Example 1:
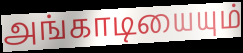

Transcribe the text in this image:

அங்காடியையும்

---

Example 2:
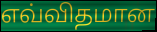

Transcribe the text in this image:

எவ்விதமான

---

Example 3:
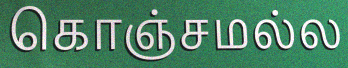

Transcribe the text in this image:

கொஞ்சமல்ல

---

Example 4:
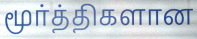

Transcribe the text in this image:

மூர்த்திகளான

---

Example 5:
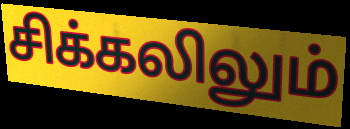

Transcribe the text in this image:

சிக்கலிலும்